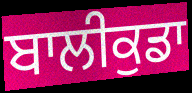
ਬਾਲੀਕੁਡਾ